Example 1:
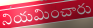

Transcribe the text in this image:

నియమించారు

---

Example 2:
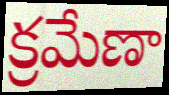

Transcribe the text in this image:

క్రమేణా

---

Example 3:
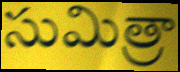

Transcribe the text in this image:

సుమిత్రా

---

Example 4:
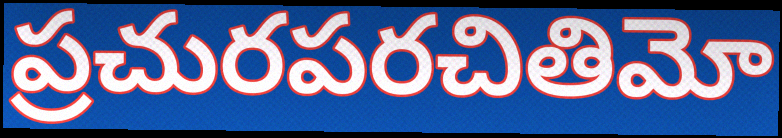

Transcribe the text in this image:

ప్రచురపరచితిమో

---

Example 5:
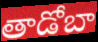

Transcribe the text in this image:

తాడోబా